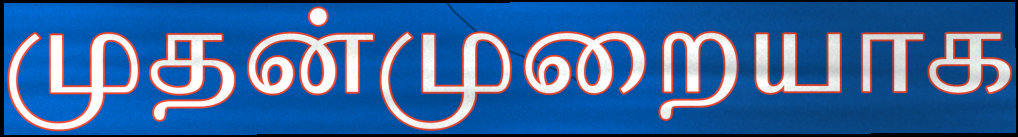
முதன்முறையாக